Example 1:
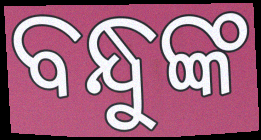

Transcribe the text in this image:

ବନ୍ଧୁଙ୍କ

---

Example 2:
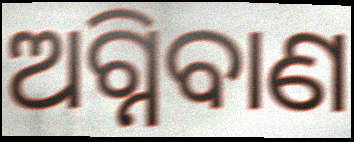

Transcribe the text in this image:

ଅଗ୍ନିବାଣ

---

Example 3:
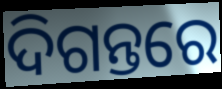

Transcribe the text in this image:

ଦିଗନ୍ତରେ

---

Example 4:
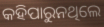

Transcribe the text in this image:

କହିପାରୁନଥିଲେ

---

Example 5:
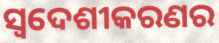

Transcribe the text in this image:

ସ୍ୱଦେଶୀକରଣର